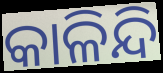
କାଳିନ୍ଦି